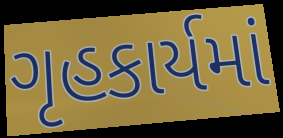
ગૃહકાર્યમાં